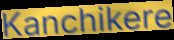
Kanchikere